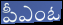
పీఎంఓ